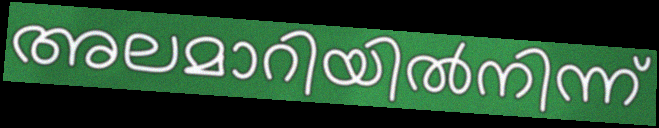
അലമാറിയിൽനിന്ന്